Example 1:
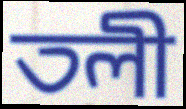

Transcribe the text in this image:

তলী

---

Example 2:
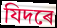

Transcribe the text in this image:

যিদৰে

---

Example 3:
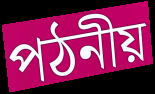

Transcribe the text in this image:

পঠনীয়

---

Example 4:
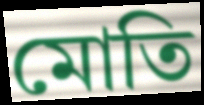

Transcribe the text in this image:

মোতি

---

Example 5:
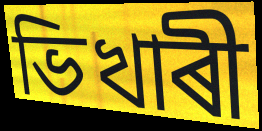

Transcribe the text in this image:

ভিখাৰী